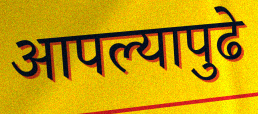
आपल्यापुढे